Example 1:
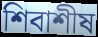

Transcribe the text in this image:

শিবাশীষ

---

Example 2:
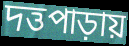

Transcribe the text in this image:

দত্তপাড়ায়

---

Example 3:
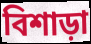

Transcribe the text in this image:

বিশাড়া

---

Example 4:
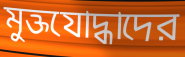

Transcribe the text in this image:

মুক্তযোদ্ধাদের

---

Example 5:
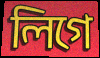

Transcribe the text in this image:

লিগে